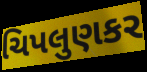
ચિપલુણકર